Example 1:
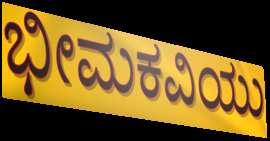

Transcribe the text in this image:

ಭೀಮಕವಿಯು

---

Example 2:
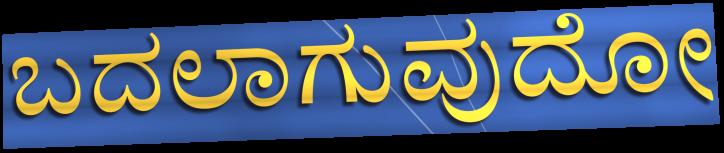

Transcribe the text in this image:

ಬದಲಾಗುವುದೋ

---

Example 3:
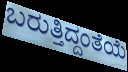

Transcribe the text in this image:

ಬರುತ್ತಿದ್ದಂತೆಯೆ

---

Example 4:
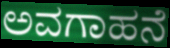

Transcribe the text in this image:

ಅವಗಾಹನೆ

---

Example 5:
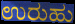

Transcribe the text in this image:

ಉರುಹು